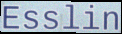
Esslin